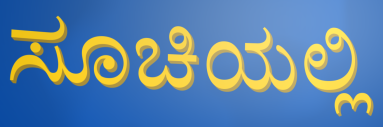
ಸೂಚಿಯಲ್ಲಿ